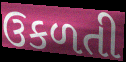
ઉકળતી